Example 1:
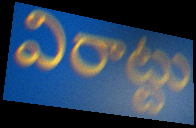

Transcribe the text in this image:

విరాట్టు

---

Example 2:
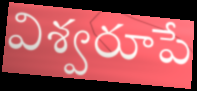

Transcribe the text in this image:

విశ్వరూపే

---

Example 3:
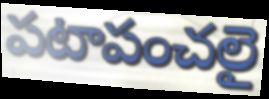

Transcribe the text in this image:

పటాపంచలై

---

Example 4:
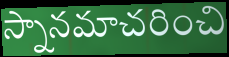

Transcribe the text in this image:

స్నానమాచరించి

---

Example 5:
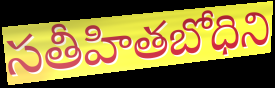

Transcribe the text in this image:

సతీహితబోధిని